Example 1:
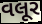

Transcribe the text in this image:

વલૂર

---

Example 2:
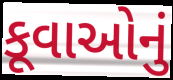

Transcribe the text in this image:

કૂવાઓનું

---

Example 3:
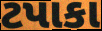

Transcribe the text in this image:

ટપાકા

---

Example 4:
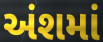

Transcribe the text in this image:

અંશમાં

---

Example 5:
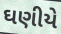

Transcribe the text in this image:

ઘણીયે